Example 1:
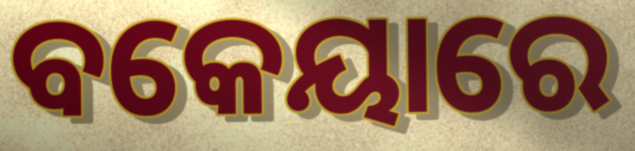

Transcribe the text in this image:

ବକେୟାରେ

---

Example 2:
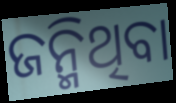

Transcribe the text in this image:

ଜନ୍ମିଥିବା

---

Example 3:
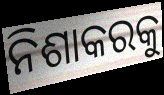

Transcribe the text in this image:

ନିଶାକରକୁ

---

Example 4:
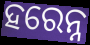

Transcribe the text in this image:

ହରେନ୍ନ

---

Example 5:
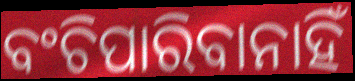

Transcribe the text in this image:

ବଂଚିପାରିବାନାହିଁ